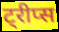
ट्रीप्स